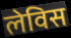
लेविस